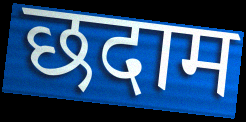
छदाम